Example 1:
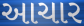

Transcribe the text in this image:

આચાર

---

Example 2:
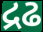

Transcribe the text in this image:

દ્રઢ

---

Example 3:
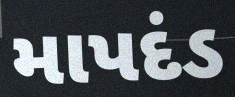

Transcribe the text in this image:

માપદંડ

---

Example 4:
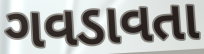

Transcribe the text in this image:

ગવડાવતા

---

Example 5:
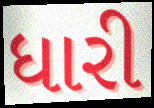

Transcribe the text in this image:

ધારી